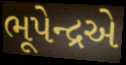
ભૂપેન્દ્રએ